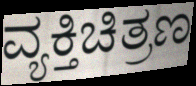
ವ್ಯಕ್ತಿಚಿತ್ರಣ